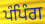
ਪੰਪਿੰਗ